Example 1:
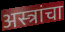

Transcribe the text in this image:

अस्त्रांचा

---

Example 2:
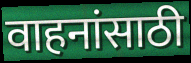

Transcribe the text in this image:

वाहनांसाठी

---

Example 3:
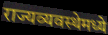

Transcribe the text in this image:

राज्यव्यवस्थेमध्ये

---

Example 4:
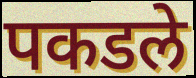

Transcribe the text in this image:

पकडले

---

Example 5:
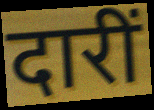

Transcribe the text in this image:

दारीं